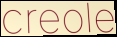
creole